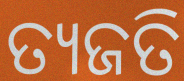
ତ୍ୟଜତି